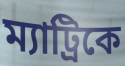
ম্যাট্রিকে